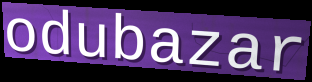
odubazar